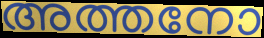
അത്തനോ